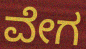
ವೇಗ